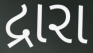
દ્રારા